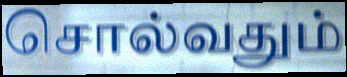
சொல்வதும்